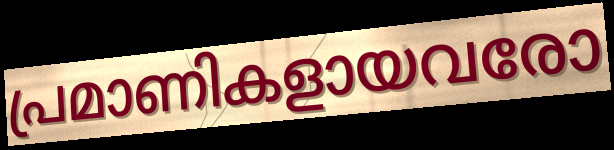
പ്രമാണികളായവരോ